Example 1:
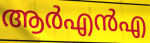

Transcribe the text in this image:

ആർഎൻഎ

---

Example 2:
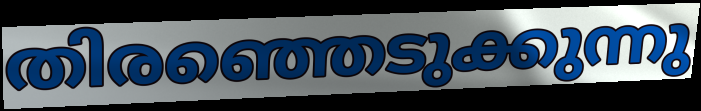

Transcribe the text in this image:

തിരഞ്ഞെടുക്കുന്നു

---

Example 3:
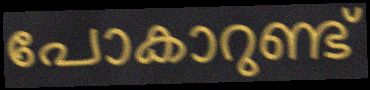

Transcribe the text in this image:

പോകാറുണ്ട്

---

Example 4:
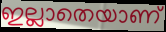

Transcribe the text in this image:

ഇല്ലാതെയാണ്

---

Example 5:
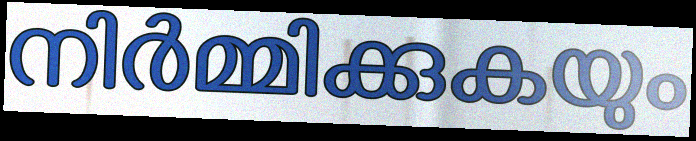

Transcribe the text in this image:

നിർമ്മിക്കുകയും